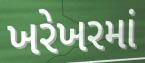
ખરેખરમાં